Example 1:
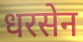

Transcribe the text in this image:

धरसेन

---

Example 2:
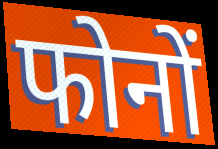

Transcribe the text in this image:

फोनों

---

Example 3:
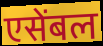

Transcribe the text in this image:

एसेंबल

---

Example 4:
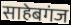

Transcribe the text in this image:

साहेबगंज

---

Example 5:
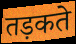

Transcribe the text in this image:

तड़कते